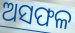
ଅସଫଳ